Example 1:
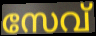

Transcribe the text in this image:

സേവ്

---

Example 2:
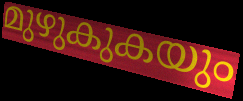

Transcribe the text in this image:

മുഴുകുകയും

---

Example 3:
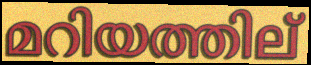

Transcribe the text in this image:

മറിയത്തില്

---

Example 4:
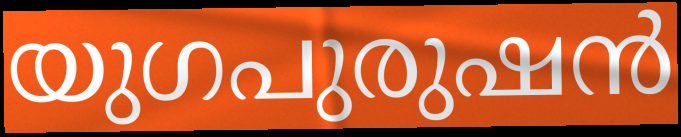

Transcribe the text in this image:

യുഗപുരുഷൻ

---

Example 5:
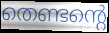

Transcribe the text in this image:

തെണ്ടന്റെ